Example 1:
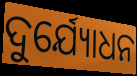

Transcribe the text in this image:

ଦୁର୍ଯ୍ୟୋଧନ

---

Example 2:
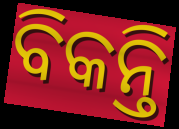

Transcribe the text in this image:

ବିକନ୍ତି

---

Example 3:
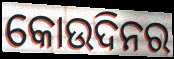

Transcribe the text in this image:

କୋଉଦିନର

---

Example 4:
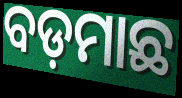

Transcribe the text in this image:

ବଡ଼ମାଛ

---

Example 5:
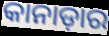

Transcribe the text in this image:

କାନାଡ଼ାର